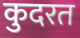
कुदरत